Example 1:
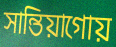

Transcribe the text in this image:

সান্তিয়াগোয়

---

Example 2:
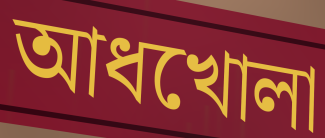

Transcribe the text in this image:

আধখোলা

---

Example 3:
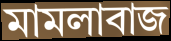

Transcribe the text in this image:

মামলাবাজ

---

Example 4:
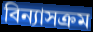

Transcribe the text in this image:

বিন্যাসক্রম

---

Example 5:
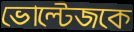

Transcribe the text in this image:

ভোল্টেজকে